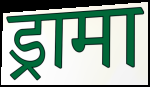
ड्रामा